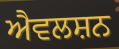
ਐਵਲਸ਼ਨ